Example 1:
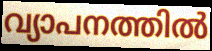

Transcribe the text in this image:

വ്യാപനത്തിൽ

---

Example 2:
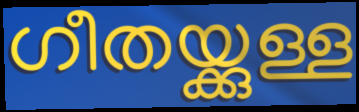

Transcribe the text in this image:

ഗീതയ്ക്കുള്ള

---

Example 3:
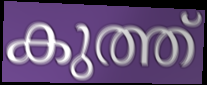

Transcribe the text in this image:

കുത്ത്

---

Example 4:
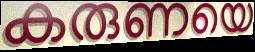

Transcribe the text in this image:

കരുണയെ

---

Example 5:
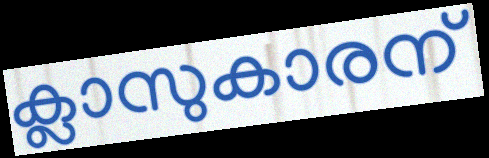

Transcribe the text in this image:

ക്ലാസുകാരന്